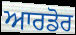
ਆਰਡੋਰ